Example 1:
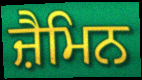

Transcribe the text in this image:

ਜ਼ੈਮਿਨ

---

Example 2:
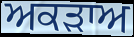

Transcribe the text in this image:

ਅਕੜਾਅ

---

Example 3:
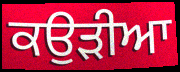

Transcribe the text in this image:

ਕਉੜੀਆ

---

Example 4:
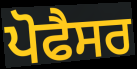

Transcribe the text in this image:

ਪੋਫੈਸਰ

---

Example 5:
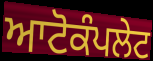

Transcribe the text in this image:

ਆਟੋਕੰਪਲੇਟ